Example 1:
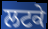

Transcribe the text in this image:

ਲਟਕੇ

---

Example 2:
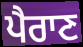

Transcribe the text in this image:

ਪੈਰਾਣ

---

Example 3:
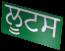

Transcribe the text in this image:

ਲੂਟਸ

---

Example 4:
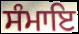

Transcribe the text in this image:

ਸੰਮਾਇ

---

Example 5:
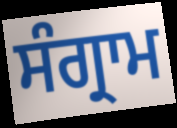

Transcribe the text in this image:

ਸੰਗ੍ਰਾਮ